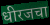
धीरजचा